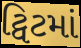
ટ્વિટમાં